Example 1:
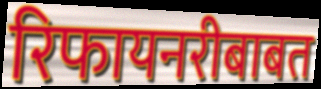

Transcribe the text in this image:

रिफायनरीबाबत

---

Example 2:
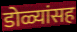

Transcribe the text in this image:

डोळ्यांसह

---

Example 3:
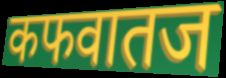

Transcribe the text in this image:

कफवातज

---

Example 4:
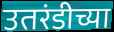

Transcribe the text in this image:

उतरंडीच्या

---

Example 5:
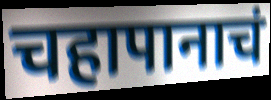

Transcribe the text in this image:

चहापानाचं